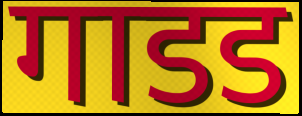
गाडड